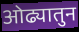
ओढ्यातुन